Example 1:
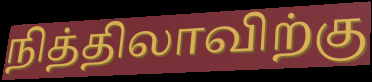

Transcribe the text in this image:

நித்திலாவிற்கு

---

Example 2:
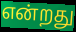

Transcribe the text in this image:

என்றது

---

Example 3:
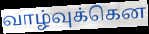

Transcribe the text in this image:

வாழ்வுக்கென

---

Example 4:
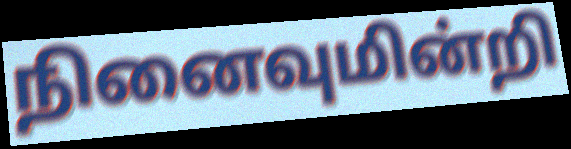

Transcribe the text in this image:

நினைவுமின்றி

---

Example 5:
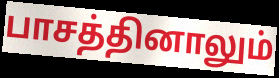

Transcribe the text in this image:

பாசத்தினாலும்